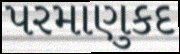
પરમાણુકદ